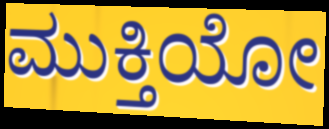
ಮುಕ್ತಿಯೋ